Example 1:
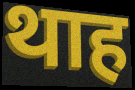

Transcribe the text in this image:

थाह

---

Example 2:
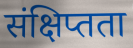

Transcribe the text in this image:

संक्षिप्तता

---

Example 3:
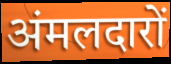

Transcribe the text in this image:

अंमलदारों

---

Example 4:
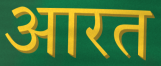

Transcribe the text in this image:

आरत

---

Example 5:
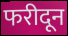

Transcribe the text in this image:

फरीदून